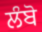
ਲੰਬੋ